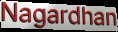
Nagardhan